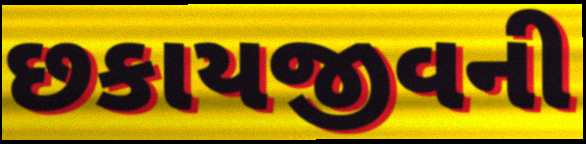
છકાયજીવની